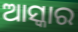
ଆସ୍କାର